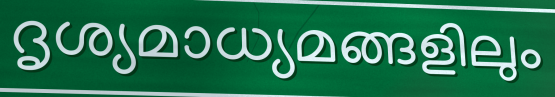
ദൃശ്യമാധ്യമങ്ങളിലും